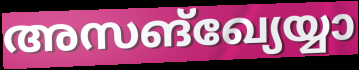
അസങ്ഖ്യേയ്യാ